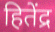
हितेंद्र